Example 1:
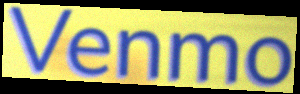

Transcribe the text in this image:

Venmo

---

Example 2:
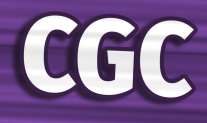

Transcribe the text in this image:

CGC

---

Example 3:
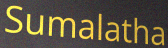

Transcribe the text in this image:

Sumalatha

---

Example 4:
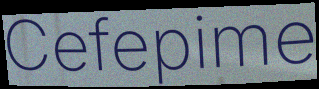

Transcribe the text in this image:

Cefepime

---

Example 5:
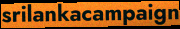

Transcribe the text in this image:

srilankacampaign